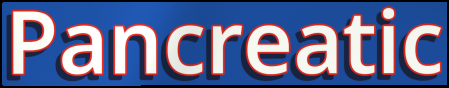
Pancreatic